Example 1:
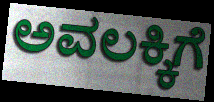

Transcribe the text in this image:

ಅವಲಕ್ಕಿಗೆ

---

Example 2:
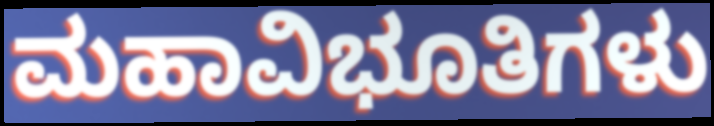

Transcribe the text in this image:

ಮಹಾವಿಭೂತಿಗಳು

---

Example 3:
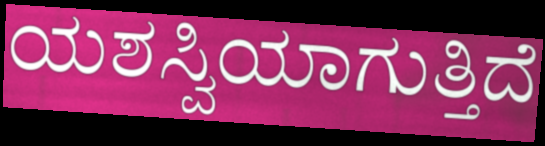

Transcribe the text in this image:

ಯಶಸ್ವಿಯಾಗುತ್ತಿದೆ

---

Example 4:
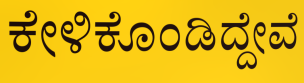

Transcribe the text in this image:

ಕೇಳಿಕೊಂಡಿದ್ದೇವೆ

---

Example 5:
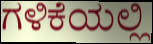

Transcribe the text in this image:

ಗಳಿಕೆಯಲ್ಲಿ